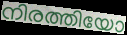
നിരത്തിയോ